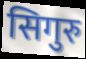
सिगुरु